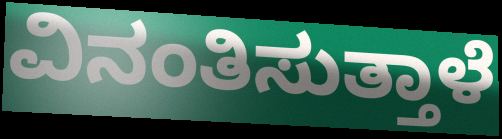
ವಿನಂತಿಸುತ್ತಾಳೆ